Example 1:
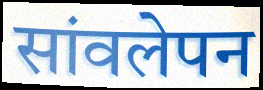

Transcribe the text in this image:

सांवलेपन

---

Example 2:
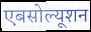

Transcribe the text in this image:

एबसोल्यूशन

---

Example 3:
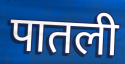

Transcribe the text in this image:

पातली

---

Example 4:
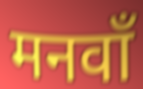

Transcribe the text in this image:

मनवाँ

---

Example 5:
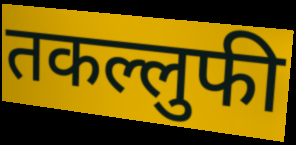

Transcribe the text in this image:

तकल्लुफी